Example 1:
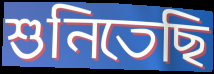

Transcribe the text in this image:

শুনিতেছি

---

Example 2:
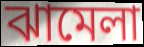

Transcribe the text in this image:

ঝামেলা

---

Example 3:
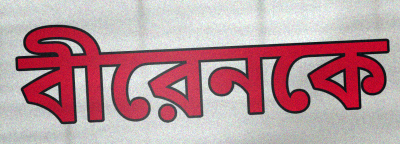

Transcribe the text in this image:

বীরেনকে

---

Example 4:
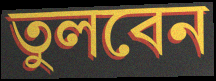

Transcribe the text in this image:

তুলবেন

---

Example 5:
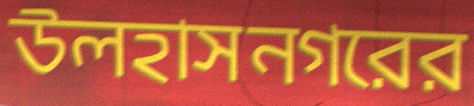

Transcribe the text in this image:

উলহাসনগরের